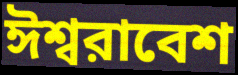
ঈশ্বরাবেশ